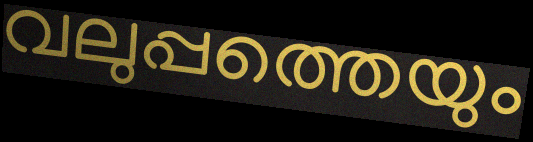
വലുപ്പത്തെയും